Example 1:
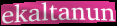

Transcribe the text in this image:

ekaltanun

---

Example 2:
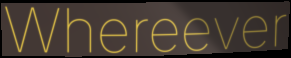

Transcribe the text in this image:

Whereever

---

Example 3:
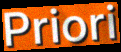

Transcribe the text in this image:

Priori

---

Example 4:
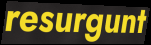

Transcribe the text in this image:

resurgunt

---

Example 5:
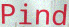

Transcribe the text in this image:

Pind